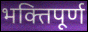
भक्तिपूर्ण